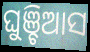
ଘୁଞ୍ଚିଆସ